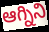
ఆగ్నిని